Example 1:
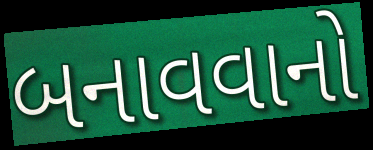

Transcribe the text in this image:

બનાવવાનો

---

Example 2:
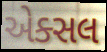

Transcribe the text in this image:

એક્સલ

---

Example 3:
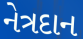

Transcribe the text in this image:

નેત્રદાન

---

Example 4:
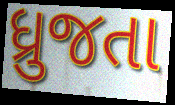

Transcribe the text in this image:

ધ્રુજતા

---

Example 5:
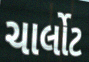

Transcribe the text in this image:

ચાર્લોટ